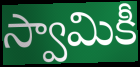
స్వామికీ